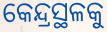
କେନ୍ଦ୍ରସ୍ଥଳକୁ